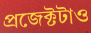
প্রজেক্টটাও